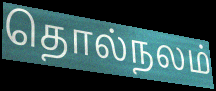
தொல்நலம்